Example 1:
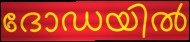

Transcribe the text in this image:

ദോഡയിൽ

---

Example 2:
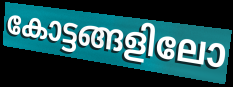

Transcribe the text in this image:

കോട്ടങ്ങളിലോ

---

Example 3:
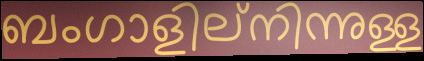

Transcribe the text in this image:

ബംഗാളില്നിന്നുള്ള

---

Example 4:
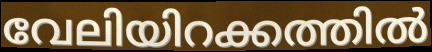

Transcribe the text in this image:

വേലിയിറക്കത്തിൽ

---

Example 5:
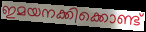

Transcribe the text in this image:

ഇമയനക്കിക്കൊണ്ട്